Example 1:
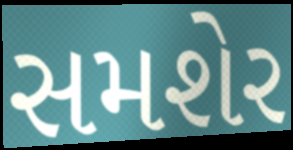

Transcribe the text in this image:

સમશેર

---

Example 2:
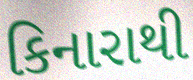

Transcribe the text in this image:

કિનારાથી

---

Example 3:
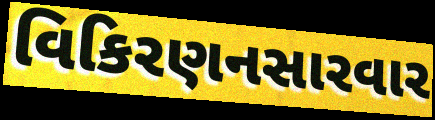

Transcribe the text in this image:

વિકિરણનસારવાર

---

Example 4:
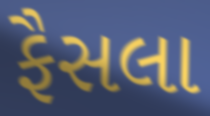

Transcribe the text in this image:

ફૈસલા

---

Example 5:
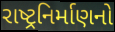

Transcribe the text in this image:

રાષ્ટ્રનિર્માણનો